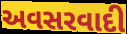
અવસરવાદી